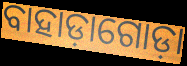
ବାହାଡ଼ାଗୋଡ଼ା